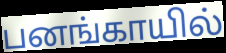
பனங்காயில்